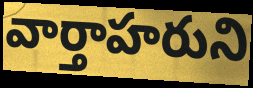
వార్తాహరుని